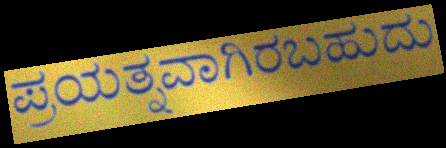
ಪ್ರಯತ್ನವಾಗಿರಬಹುದು